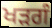
ਖੜਗੰ